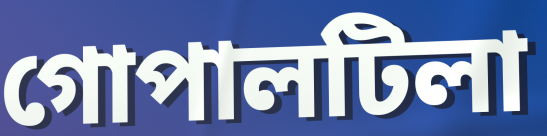
গোপালটিলা